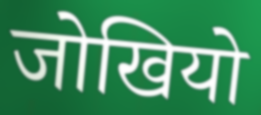
जोखियो